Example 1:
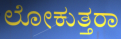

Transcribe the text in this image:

ಲೋಕುತ್ತರಾ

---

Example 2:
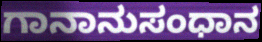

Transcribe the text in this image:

ಗಾನಾನುಸಂಧಾನ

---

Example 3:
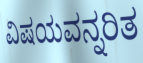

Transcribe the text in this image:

ವಿಷಯವನ್ನರಿತ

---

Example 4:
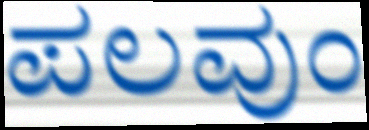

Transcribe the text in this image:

ಪಲವುಂ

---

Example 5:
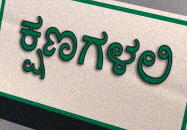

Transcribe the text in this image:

ಕ್ಷಣಗಳಲಿ